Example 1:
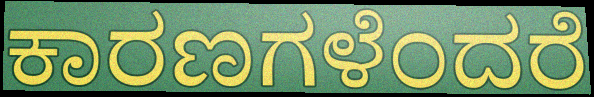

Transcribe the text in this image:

ಕಾರಣಗಳೆಂದರೆ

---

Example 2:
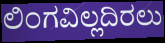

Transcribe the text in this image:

ಲಿಂಗವಿಲ್ಲದಿರಲು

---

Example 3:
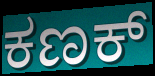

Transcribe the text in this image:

ಕಣಕ್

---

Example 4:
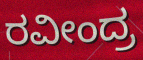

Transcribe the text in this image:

ರವೀಂದ್ರ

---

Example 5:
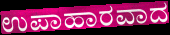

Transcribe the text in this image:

ಉಪಾಹಾರವಾದ